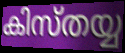
കിസ്തയ്യ